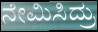
ನೇಮಿಸಿದ್ರು